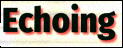
Echoing